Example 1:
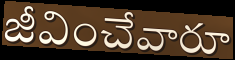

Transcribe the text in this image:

జీవించేవారూ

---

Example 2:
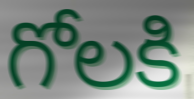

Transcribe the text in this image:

గోలకి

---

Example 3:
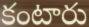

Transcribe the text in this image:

కంటారు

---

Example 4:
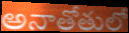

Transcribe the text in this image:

అనాతోతులో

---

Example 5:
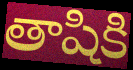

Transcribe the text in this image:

తాషికి